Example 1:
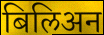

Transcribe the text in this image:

बिलिअन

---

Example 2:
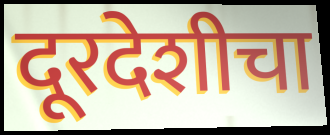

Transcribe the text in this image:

दूरदेशीचा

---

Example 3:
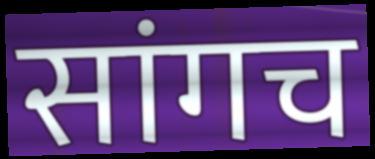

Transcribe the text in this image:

सांगच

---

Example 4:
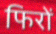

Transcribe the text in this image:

फिरों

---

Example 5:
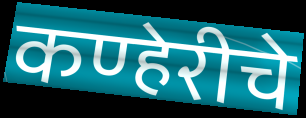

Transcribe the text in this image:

कण्हेरीचे